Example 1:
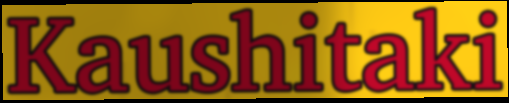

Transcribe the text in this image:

Kaushitaki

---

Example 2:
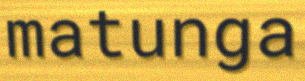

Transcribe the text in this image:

matunga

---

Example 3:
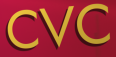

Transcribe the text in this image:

CVC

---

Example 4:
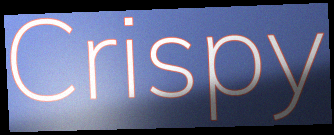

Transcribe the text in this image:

Crispy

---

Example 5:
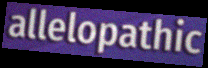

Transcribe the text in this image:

allelopathic